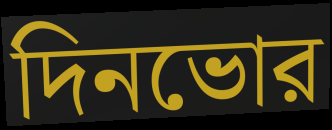
দিনভোর